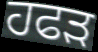
ਹਫੜ